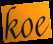
koe